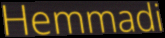
Hemmadi